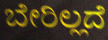
ಬೇರಿಲ್ಲದೆ